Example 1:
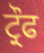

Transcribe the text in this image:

ਟ੍ਰੌਫ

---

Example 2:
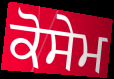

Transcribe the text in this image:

ਕੋਸੇਮ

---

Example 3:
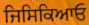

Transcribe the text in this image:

ਜਿਸਿਕਿਆਓ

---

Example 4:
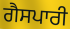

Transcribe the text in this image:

ਗੈਸਪਾਰੀ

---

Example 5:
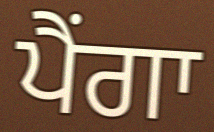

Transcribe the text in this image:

ਪੈਂਗਾ